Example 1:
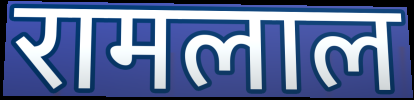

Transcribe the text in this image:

रामलाल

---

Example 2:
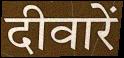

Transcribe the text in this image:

दीवारें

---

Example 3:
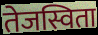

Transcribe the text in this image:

तेजस्विता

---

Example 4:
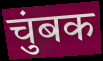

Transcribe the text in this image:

चुंबक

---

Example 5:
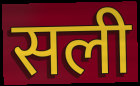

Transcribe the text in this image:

सली